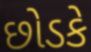
છોડકે